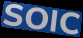
SOIC